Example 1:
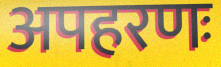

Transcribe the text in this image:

अपहरणः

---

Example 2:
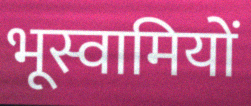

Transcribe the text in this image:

भूस्वामियों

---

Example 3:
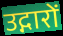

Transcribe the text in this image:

उद्गारों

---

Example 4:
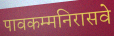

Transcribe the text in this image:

पावकम्मनिरासवे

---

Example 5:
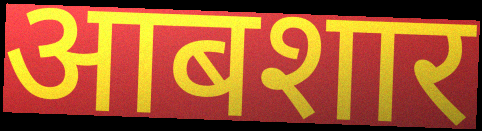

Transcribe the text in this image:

आबशार